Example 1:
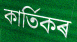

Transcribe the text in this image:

কাৰ্তিকৰ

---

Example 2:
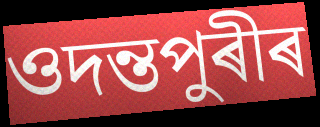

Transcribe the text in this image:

ওদন্তপুৰীৰ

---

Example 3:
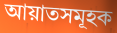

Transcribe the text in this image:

আয়াতসমূহক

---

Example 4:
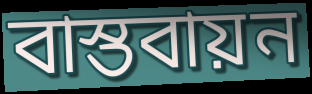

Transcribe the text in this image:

বাস্তবায়ন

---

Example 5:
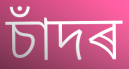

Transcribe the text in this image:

চাঁদৰ